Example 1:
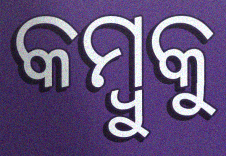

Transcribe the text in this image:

କମ୍ବୁକୁ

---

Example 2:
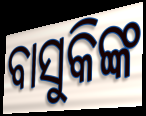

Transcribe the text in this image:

ବାସୁକିଙ୍କ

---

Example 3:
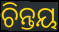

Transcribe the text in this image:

ଚିନ୍ତୟ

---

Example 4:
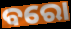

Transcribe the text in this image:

ବରୋ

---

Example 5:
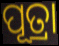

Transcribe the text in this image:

ପୂତ୍ରା